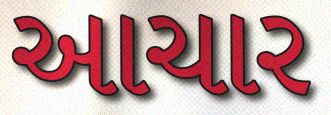
આચાર